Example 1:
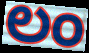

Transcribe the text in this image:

ಲಂ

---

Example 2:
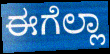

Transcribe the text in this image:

ಈಗೆಲ್ಲಾ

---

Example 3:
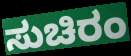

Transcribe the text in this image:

ಸುಚಿರಂ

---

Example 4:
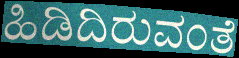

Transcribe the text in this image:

ಹಿಡಿದಿರುವಂತೆ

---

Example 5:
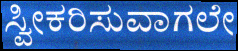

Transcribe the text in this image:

ಸ್ವೀಕರಿಸುವಾಗಲೇ